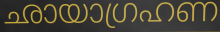
ഛായാഗ്രഹണ